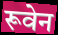
रूवेन